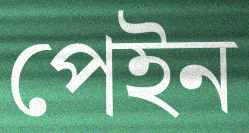
পেইন